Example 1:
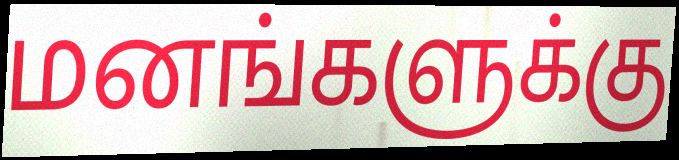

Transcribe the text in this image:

மனங்களுக்கு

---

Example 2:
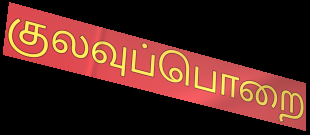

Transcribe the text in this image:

குலவுப்பொறை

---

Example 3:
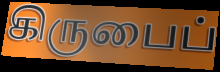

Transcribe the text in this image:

கிருபைப்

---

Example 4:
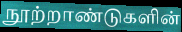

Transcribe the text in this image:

நூற்றாண்டுகளின்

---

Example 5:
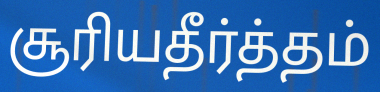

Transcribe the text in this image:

சூரியதீர்த்தம்